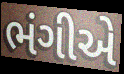
ભંગીએ